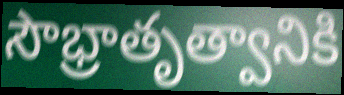
సౌభ్రాతృత్వానికి